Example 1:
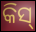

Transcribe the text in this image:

କିସ୍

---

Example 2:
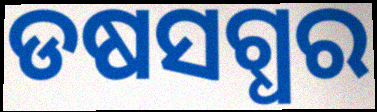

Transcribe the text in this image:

ଡଷସଗ୍ଧର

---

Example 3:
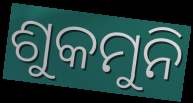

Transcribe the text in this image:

ଶୁକମୁନି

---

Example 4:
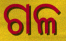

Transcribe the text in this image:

ଗଳ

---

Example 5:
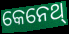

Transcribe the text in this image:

କେନେଥ୍